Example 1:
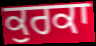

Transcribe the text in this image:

ਕੁਰਕਾ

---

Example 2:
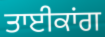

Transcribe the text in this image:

ਤਾਈਕਾਂਗ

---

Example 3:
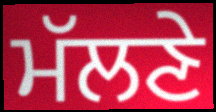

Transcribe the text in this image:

ਮੱਲਣੇ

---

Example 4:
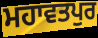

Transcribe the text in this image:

ਮਹਾਵਤਪੁਰ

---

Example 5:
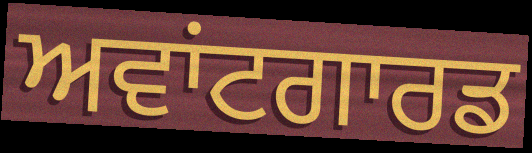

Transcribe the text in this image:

ਅਵਾਂਟਗਾਰਡ